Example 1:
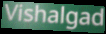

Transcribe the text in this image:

Vishalgad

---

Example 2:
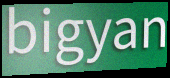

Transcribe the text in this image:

bigyan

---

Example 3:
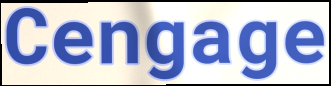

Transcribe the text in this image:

Cengage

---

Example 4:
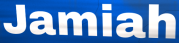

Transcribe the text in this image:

Jamiah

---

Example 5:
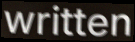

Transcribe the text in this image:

written